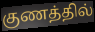
குணத்தில்